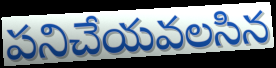
పనిచేయవలసిన